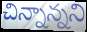
చిన్నాన్నని